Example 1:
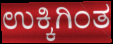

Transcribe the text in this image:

ಉಕ್ಕಿಗಿಂತ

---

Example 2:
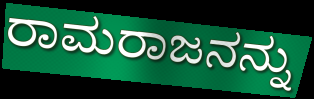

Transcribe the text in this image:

ರಾಮರಾಜನನ್ನು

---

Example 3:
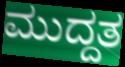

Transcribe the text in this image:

ಮುದ್ದತ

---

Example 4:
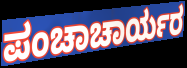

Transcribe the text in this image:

ಪಂಚಾಚಾರ್ಯರ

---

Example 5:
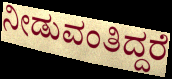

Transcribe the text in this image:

ನೀಡುವಂತಿದ್ದರೆ